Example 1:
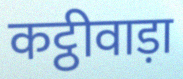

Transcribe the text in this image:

कट्ठीवाड़ा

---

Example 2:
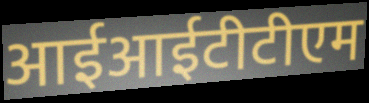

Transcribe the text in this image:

आईआईटीटीएम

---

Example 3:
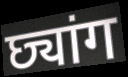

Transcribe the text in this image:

छ्यांग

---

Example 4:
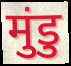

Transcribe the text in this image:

मुंडु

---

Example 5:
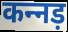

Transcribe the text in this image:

कन्‍नड़